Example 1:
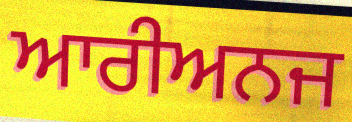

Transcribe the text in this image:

ਆਰੀਅਨਜ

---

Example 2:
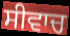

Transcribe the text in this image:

ਸੀਵਾਚ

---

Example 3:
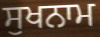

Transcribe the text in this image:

ਸੁਖਨਾਮ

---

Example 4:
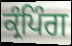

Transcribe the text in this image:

ਕ੍ਰੰਪਿੰਗ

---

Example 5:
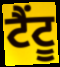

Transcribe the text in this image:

ਟੈਂਟੂ